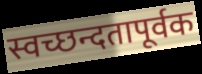
स्वच्छन्दतापूर्वक